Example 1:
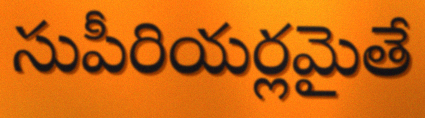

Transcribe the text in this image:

సుపీరియర్లమైతే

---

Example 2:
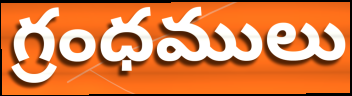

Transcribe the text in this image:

గ్రంధములు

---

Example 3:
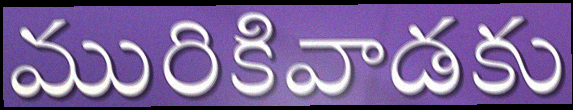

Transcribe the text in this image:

మురికివాడకు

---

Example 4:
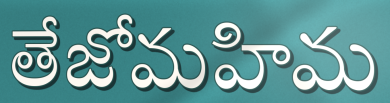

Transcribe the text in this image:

తేజోమహిమ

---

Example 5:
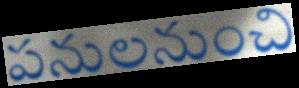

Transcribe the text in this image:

పనులనుంచి